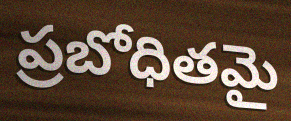
ప్రబోధితమై